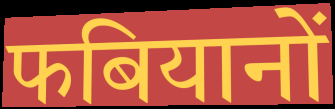
फबियानों